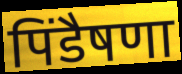
पिंडैषणा